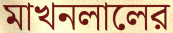
মাখনলালের